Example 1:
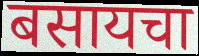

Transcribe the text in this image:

बसायचा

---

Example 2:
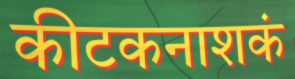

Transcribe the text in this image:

कीटकनाशकं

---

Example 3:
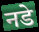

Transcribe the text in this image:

नडे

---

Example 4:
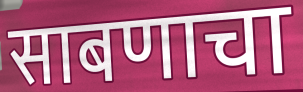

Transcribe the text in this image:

साबणाचा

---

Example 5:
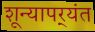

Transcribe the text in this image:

शून्यापर्यंत